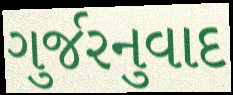
ગુર્જરનુવાદ